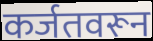
कर्जतवरून